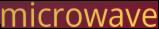
microwave